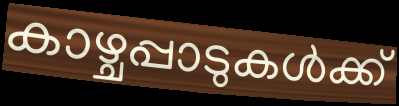
കാഴ്ചപ്പാടുകൾക്ക്